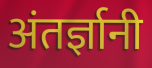
अंतर्ज्ञानी